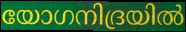
യോഗനിദ്രയിൽ